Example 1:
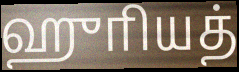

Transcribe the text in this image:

ஹுரியத்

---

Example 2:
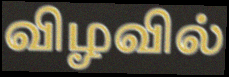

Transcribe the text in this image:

விழவில்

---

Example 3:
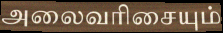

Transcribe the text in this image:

அலைவரிசையும்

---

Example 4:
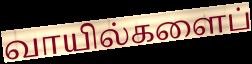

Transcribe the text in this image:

வாயில்களைப்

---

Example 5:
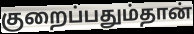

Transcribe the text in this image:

குறைப்பதும்தான்